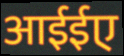
आईईए